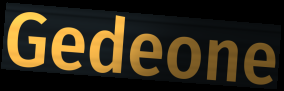
Gedeone